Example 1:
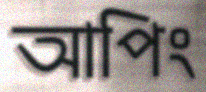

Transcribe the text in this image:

আপিং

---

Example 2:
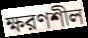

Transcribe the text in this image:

ক্ষরণশীল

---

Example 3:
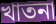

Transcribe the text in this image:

খাতনা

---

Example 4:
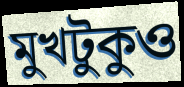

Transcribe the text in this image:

মুখটুকুও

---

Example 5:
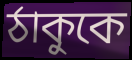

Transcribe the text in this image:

ঠাকুকে